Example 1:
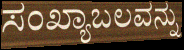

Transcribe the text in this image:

ಸಂಖ್ಯಾಬಲವನ್ನು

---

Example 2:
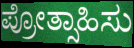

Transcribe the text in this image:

ಪ್ರೋತ್ಸಾಹಿಸು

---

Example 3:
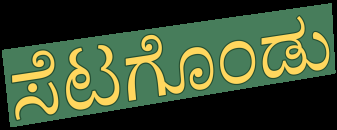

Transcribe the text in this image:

ಸೆಟಗೊಂಡು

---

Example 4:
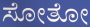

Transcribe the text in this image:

ಸೋತೋ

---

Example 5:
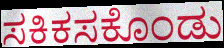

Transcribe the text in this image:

ಸಕಿಕಸಕೊಂಡು